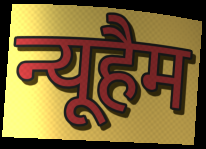
न्यूहैम